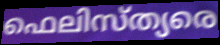
ഫെലിസ്ത്യരെ